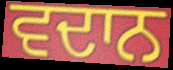
ਵਦਾਨ